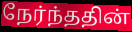
நேர்ந்ததின்